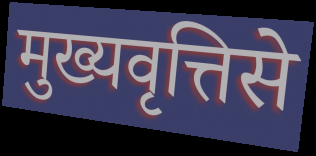
मुख्यवृत्तिसे